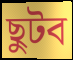
ছুটব